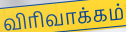
விரிவாக்கம்